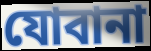
যোবানা